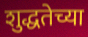
शुद्धतेच्या